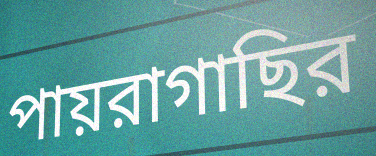
পায়রাগাছির